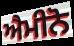
ਐਮੀਨੋ